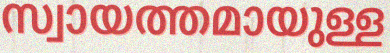
സ്വായത്തമായുള്ള